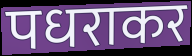
पधराकर